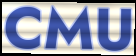
CMU